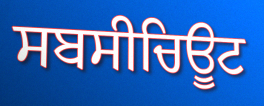
ਸਬਸੀਚਿਊਟ